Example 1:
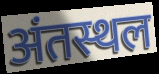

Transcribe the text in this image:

अंतस्थल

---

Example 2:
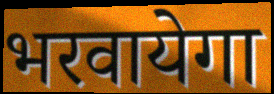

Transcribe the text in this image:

भरवायेगा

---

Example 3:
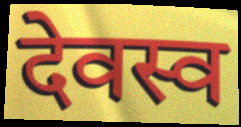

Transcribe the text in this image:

देवस्व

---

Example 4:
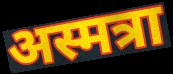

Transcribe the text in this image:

अस्मत्रा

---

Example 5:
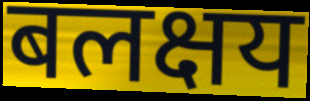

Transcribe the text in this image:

बलक्षय